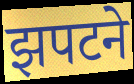
झपटने